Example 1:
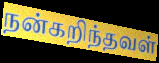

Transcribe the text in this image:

நன்கறிந்தவள்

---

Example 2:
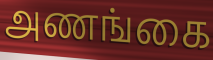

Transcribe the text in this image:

அணங்கை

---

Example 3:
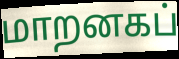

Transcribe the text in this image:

மாறனகப்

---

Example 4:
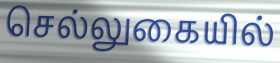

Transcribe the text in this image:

செல்லுகையில்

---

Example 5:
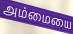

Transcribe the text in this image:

அம்மையை